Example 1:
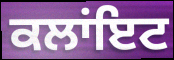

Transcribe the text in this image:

ਕਲਾਂਇਟ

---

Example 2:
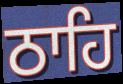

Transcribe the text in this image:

ਠਾਹਿ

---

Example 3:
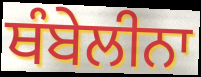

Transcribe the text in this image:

ਥੰਬੇਲੀਨਾ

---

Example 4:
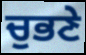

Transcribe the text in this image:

ਚੁਭਣੇ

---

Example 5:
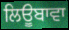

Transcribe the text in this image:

ਲਿਊਬਾਵਾ